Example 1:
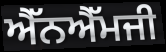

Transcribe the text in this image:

ਐੱਨਐੱਮਜੀ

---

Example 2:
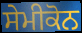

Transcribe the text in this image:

ਸੇਮੀਕੋਨ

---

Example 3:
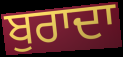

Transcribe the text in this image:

ਬੁਰਾਦਾ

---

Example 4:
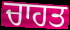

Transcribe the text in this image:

ਚਾਹਤ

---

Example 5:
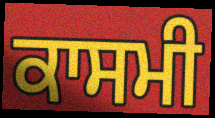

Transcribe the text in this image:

ਕਾਸਮੀ